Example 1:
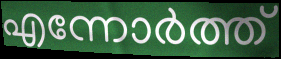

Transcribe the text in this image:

എന്നോർത്ത്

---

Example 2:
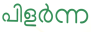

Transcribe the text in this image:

പിളർന്ന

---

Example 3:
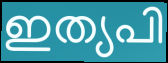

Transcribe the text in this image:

ഇത്യപി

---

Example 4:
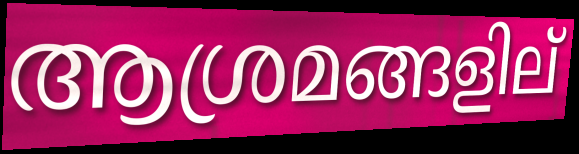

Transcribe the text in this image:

ആശ്രമങ്ങളില്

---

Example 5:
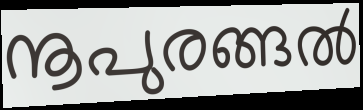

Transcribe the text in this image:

നൂപുരങ്ങൽ